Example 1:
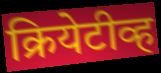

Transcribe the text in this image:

क्रियेटीव्ह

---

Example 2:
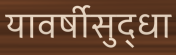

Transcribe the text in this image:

यावर्षीसुद्धा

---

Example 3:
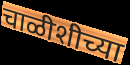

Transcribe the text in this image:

चाळीशीच्या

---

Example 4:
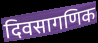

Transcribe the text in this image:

दिवसागणिक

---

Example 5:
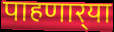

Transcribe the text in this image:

पाहणार्‍या